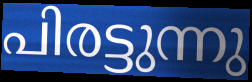
പിരട്ടുന്നു